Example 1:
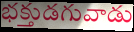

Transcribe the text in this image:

భక్తుడగువాడు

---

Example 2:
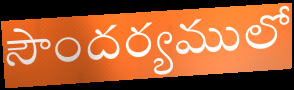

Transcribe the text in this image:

సౌందర్యములో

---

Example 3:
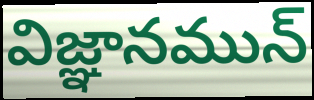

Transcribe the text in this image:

విజ్ఞానమున్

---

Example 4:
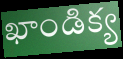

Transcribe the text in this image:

ఖాండిక్య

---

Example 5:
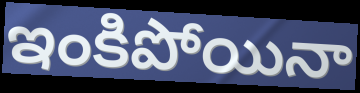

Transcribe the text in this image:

ఇంకిపోయినా